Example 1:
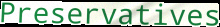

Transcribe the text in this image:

Preservatives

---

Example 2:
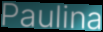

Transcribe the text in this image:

Paulina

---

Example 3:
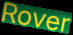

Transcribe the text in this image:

Rover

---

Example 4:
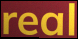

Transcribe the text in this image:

real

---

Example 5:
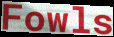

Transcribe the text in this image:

Fowls